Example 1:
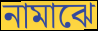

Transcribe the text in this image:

নামাঝে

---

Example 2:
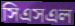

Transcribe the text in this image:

সিএসএল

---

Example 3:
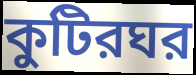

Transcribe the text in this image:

কুটিরঘর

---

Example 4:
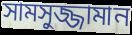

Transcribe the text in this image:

সামসুজ্জামান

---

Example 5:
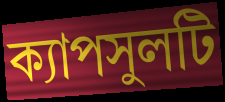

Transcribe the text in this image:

ক্যাপসুলটি